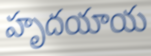
హృదయాయ